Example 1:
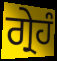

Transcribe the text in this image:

ਗ੍ਰੇਹੰ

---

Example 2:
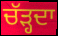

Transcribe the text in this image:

ਚੱੜ੍ਹਦਾ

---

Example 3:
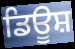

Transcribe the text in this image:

ਡਿਊਸ਼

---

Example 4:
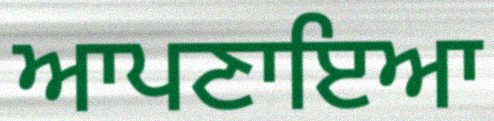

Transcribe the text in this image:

ਆਪਣਾਇਆ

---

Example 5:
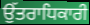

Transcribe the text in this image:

ਉੱਤਰਾਧਿਕਾਰੀ